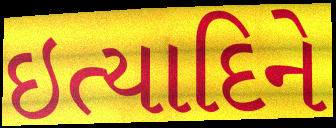
ઇત્‍યાદિને